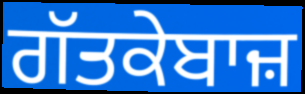
ਗੱਤਕੇਬਾਜ਼